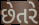
છેતરે